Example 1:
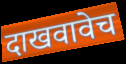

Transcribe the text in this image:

दाखवावेच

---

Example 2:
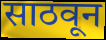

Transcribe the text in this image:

साठवून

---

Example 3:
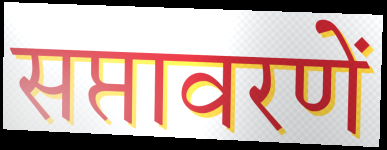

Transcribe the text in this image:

सप्तावरणें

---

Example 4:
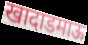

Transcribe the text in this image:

खादाडमाऊ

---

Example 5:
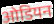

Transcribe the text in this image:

ओडियन